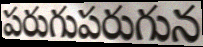
పరుగుపరుగున